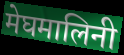
मेघमालिनी